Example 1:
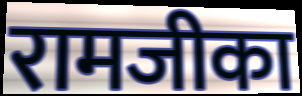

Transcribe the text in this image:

रामजीका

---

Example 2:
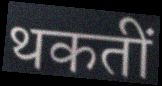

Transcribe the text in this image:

थकतीं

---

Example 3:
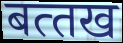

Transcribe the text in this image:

बत्‍तख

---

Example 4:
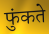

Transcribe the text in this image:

फुंकते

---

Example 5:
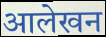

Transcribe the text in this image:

आलेखन